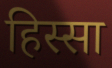
हिस्सा